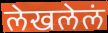
लेखलेलं